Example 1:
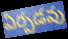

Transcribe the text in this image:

ఏర్పడవు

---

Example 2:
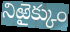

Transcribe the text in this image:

నిఱైక్కుం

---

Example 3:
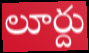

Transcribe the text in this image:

లూర్దు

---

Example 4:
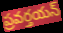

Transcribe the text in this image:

ప్రవర్తయన్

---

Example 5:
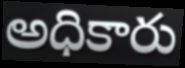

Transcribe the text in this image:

అధికారు